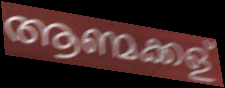
ആണ്മക്കള്